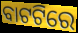
ବାଟଟିରେ